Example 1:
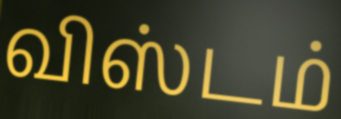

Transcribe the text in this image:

விஸ்டம்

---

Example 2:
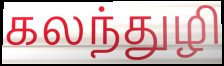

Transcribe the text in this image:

கலந்துழி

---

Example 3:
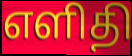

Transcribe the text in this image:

எளிதி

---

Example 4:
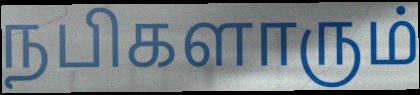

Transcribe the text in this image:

நபிகளாரும்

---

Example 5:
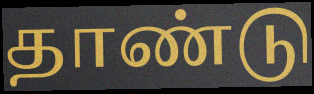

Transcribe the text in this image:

தாண்டு